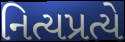
નિત્યપ્રત્યે